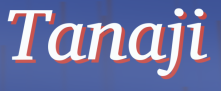
Tanaji